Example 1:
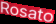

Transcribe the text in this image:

Rosato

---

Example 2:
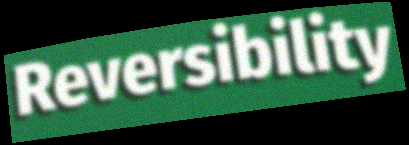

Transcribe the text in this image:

Reversibility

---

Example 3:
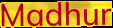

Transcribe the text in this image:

Madhur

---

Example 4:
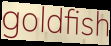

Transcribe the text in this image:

goldfish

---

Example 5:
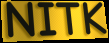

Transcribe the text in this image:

NITK